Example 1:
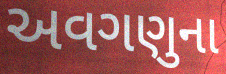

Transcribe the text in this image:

અવગણુના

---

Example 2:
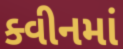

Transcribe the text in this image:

ક્વીનમાં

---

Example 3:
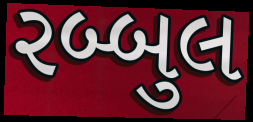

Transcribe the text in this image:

રબ્બુલ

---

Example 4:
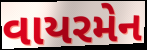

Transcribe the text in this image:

વાયરમેન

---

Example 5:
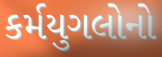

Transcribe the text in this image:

કર્મયુગલોનો